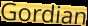
Gordian